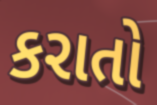
કરાતો